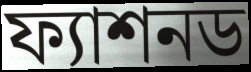
ফ্যাশনড